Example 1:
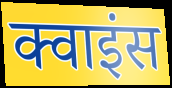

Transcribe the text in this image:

क्वाइंस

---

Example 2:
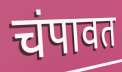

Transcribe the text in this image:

चंपावत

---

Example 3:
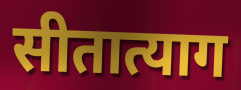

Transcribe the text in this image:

सीतात्याग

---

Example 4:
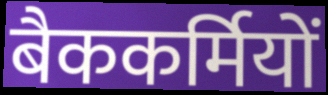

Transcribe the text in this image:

बैककर्मियों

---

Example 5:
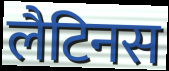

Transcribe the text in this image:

लैटिनस